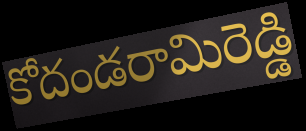
కోదండరామిరెడ్డి